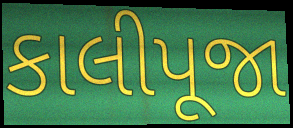
કાલીપૂજા